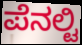
ಪೆನಲ್ಟಿ